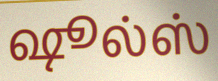
ஷூல்ஸ்